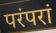
परंपरां